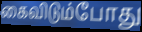
கைவிடும்போது